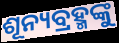
ଶୂନ୍ୟବ୍ରହ୍ମଙ୍କୁ